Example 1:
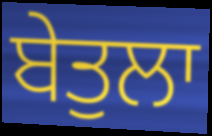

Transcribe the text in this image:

ਬੇਤੁਲਾ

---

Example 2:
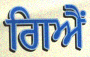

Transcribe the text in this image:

ਗਿਐਂ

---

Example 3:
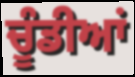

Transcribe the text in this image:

ਚੂੰਡੀਆਂ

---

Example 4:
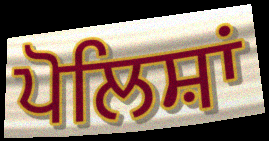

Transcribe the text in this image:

ਪੋਲਿਸ਼ਾਂ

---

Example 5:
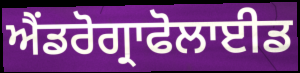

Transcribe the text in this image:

ਐਂਡਰੋਗ੍ਰਾਫੋਲਾਈਡ